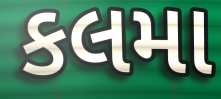
કલમા